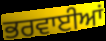
ਭਰਵਾਈਆਂ